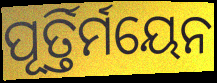
ପୂର୍ତ୍ତିର୍ମୟେନ